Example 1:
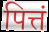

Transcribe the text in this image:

पित्तं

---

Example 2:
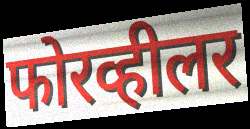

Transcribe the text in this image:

फोरव्हीलर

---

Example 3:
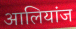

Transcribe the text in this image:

आलियांज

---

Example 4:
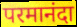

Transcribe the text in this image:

परमानंदा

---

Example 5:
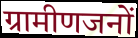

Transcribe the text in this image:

ग्रामीणजनों